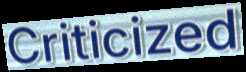
Criticized